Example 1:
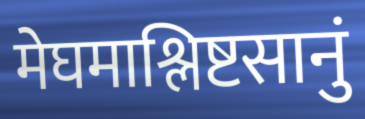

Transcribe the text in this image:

मेघमाश्लिष्टसानुं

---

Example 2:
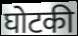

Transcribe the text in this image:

घोटकी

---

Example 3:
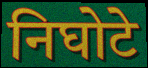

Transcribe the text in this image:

निघोटे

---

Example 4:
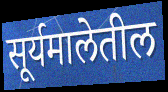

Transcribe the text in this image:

सूर्यमालेतील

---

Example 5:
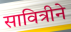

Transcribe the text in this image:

सावित्रीने